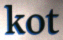
kot